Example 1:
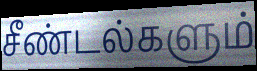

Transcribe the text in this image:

சீண்டல்களும்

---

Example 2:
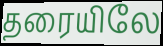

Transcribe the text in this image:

தரையிலே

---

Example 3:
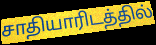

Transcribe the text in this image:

சாதியாரிடத்தில்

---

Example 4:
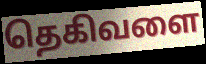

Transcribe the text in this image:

தெகிவளை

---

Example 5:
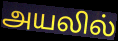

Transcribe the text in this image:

அயலில்